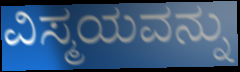
ವಿಸ್ಮಯವನ್ನು